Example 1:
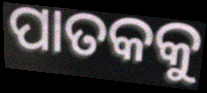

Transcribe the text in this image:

ପାତକକୁ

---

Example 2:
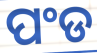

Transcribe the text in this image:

ପଂଡ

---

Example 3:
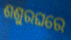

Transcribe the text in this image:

ଶଶୁରଘରେ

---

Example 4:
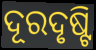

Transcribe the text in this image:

ଦୂରଦୃଷ୍ଟି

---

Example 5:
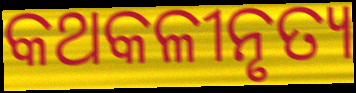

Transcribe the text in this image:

କଥକଳୀନୃତ୍ୟ